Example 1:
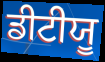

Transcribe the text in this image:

ਡੀਟੀਯੂ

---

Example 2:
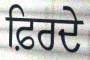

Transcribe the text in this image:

ਫ਼ਿਰਦੇ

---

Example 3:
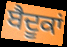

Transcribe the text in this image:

ਬੈਦੂਕਾਂ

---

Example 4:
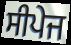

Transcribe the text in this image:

ਸੀਪੇਜ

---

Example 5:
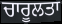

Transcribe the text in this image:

ਚਾਰੂਲਤਾ